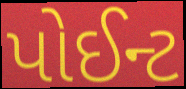
પોઈન્ટ